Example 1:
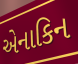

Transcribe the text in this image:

એનાકિન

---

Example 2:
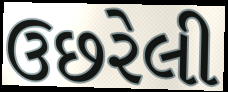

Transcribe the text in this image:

ઉછરેલી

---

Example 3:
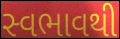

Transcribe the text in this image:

સ્વભાવથી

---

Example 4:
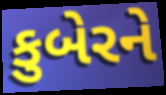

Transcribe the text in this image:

કુબેરને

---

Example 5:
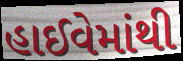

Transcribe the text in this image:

હાઈવેમાંથી